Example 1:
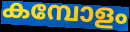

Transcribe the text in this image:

കമ്പോളം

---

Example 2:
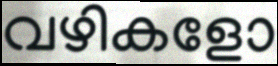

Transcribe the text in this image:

വഴികളോ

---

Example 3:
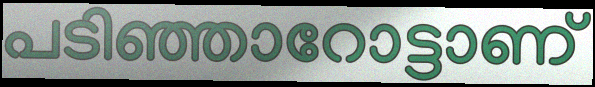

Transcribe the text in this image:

പടിഞ്ഞാറോട്ടാണ്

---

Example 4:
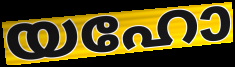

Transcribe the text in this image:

യഹോ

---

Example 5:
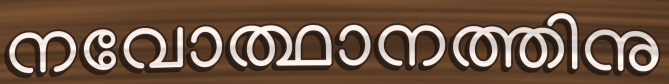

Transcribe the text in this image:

നവോത്ഥാനത്തിനു